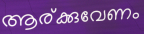
ആര്ക്കുവേണം